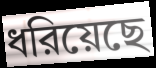
ধরিয়েছে